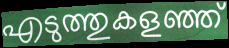
എടുത്തുകളഞ്ഞ്